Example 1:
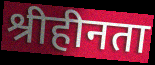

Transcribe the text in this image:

श्रीहीनता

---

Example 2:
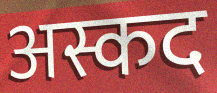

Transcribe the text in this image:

अस्कद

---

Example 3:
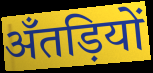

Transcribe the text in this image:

अँतड़ियों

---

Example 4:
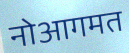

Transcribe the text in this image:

नोआगमत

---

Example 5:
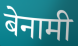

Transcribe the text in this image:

बेनामी